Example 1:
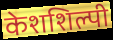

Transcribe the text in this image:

केशशिल्पी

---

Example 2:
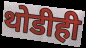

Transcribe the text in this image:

थोडीही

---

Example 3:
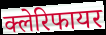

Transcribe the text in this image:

क्लेरिफायर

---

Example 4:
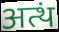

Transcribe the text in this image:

अत्थं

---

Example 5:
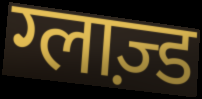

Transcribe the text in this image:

ग्लाज़्ड